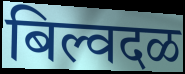
बिल्वदळ